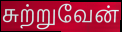
சுற்றுவேன்